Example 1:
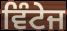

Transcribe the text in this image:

ਵਿੰਟੇਜ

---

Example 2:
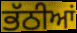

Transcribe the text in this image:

ਭੱਠੀਆਂ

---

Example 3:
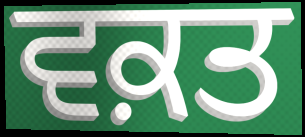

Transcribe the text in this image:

ਵਕ਼ਤ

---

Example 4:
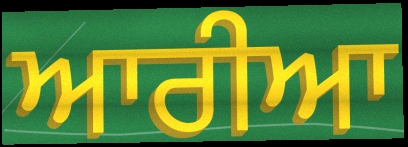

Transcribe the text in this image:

ਆਰੀਆ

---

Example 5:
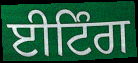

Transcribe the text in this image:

ਈਟਿੰਗ